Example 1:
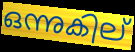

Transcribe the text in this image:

ഒന്നുകില്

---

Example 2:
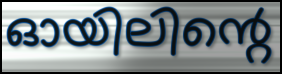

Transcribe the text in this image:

ഓയിലിന്റെ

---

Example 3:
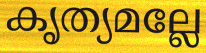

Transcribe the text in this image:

കൃത്യമല്ലേ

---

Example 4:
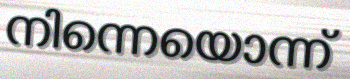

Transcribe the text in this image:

നിന്നെയൊന്ന്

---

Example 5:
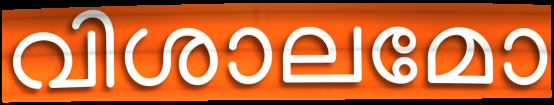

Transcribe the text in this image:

വിശാലമോ